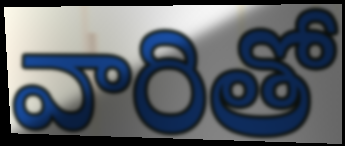
వారితో